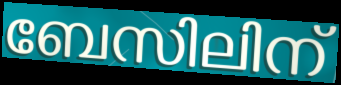
ബേസിലിന്